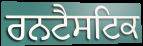
ਰਨਟੈਸਟਿਕ